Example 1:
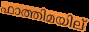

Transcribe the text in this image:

ഫാത്തിമയില്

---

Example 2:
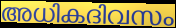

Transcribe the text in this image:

അധികദിവസം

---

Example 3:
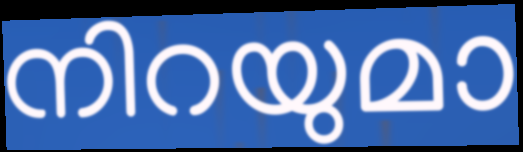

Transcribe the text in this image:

നിറയുമാ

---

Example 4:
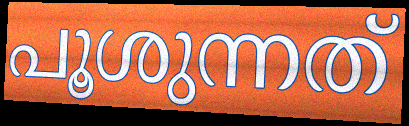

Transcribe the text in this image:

പൂശുന്നത്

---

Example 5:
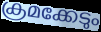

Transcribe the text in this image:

ക്രമക്കേടും